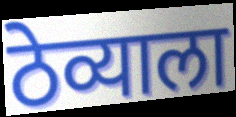
ठेव्याला